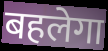
बहलेगा